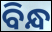
ବିନ୍ଧ